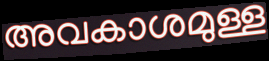
അവകാശമുള്ള